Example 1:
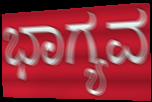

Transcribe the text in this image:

ಭಾಗ್ಯವ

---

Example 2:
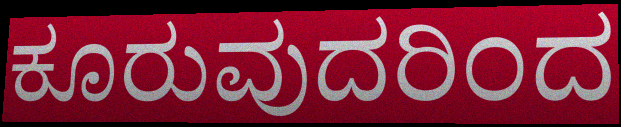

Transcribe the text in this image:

ಕೂರುವುದರಿಂದ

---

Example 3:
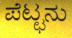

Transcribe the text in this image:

ಪೆಟ್ಟನು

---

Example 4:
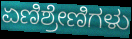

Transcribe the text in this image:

ಏಣಿಶ್ರೇಣಿಗಳು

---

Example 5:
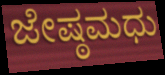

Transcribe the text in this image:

ಜೇಷ್ಠಮಧು